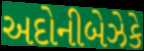
અદોનીબેઝેકે